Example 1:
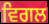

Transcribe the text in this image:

ਵਿਗਲ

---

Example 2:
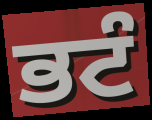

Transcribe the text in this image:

ਭਟੰ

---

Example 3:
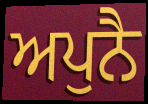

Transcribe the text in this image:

ਅਪੁਨੈ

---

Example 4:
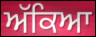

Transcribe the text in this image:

ਅੱਕਿਆ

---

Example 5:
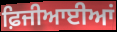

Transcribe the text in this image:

ਫ਼ਿਜੀਆਈਆਂ